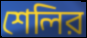
শেলির